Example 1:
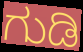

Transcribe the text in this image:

ಗುಡಿ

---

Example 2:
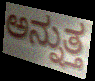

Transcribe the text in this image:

ಅನ್ನುತ್ತ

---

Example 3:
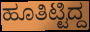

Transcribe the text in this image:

ಹೂತಿಟ್ಟಿದ್ದ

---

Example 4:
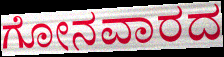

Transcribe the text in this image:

ಗೋನವಾರದ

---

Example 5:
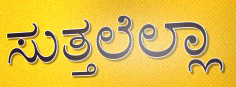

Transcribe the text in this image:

ಸುತ್ತಲೆಲ್ಲಾ